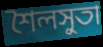
শৈলসুতা